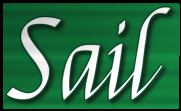
Sail